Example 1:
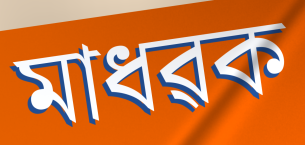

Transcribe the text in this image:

মাধৱক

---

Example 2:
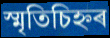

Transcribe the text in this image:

স্মৃতিচিহ্নৰ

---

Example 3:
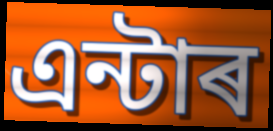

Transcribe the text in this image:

এন্টাৰ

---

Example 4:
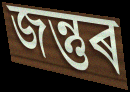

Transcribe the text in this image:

জন্তুৰ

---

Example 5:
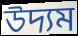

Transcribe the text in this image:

উদ্যম